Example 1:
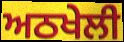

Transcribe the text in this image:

ਅਠਖੇਲੀ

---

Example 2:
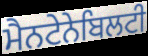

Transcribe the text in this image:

ਮੈਨਟੇਨੇਬਿਲਟੀ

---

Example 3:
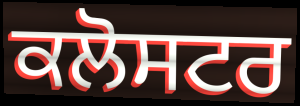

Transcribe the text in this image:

ਕਲੋਸਟਰ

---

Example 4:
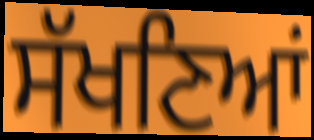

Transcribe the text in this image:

ਸੱਖਣਿਆਂ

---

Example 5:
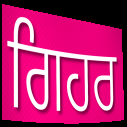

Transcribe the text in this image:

ਗਿਹਰ